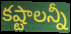
కష్టాలన్నీ